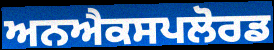
ਅਨਐਕਸਪਲੋਰਡ